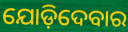
ଯୋଡ଼ିଦେବାର